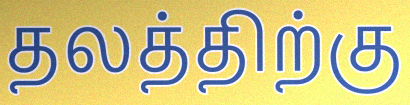
தலத்திற்கு